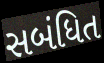
સબંધિત